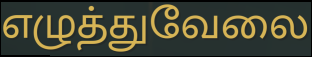
எழுத்துவேலை